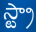
స్ట్రా